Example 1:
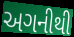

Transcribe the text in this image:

અગનીથી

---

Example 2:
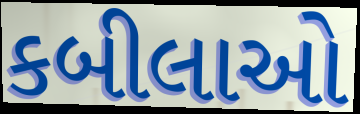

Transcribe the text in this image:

કબીલાઓ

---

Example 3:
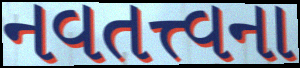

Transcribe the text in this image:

નવતત્ત્વના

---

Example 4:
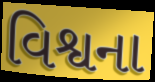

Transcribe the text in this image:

વિશ્વના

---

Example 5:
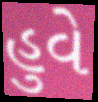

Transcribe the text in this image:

હુવે